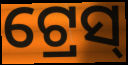
ଟ୍ରେସ୍